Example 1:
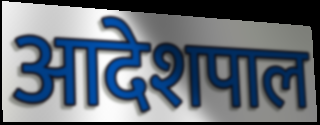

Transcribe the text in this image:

आदेशपाल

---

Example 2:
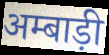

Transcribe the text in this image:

अम्बाड़ी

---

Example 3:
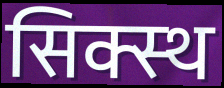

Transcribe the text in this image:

सिक्स्थ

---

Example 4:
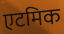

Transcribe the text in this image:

एटमिक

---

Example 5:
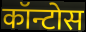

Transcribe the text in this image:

कॉन्टोस